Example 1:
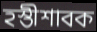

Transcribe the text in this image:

হস্তীশাবক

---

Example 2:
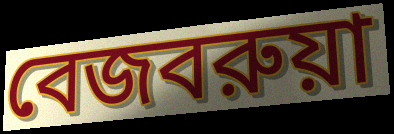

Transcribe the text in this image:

বেজবরুয়া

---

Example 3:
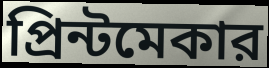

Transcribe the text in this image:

প্রিন্টমেকার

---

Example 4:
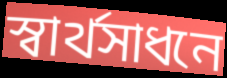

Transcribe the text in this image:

স্বার্থসাধনে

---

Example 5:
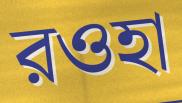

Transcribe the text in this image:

রওহা